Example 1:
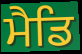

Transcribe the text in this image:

ਮੈਡਿ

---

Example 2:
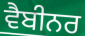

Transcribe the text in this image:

ਵੈਬੀਨਰ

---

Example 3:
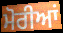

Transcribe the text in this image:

ਮੋਰੀਆਂ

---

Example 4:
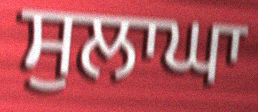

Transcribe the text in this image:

ਸੁਲਾਘਾ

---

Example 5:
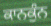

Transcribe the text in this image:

ਕਾਨਕੁੰਨ